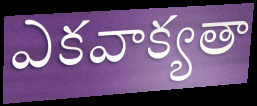
ఎకవాక్యతా